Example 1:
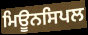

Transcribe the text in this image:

ਮਿਊਨਸਿਪਲ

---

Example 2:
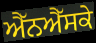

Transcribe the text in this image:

ਐੱਨਐੱਸਕੇ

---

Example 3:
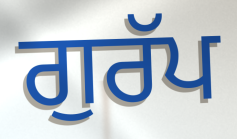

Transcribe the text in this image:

ਗੁਰੱਪ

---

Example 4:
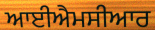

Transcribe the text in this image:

ਆਈਐਮਸੀਆਰ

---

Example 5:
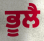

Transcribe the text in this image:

ਭੂਲੈ